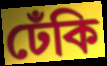
ঢেঁকি